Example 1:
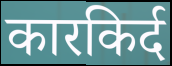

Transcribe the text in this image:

कारकिर्द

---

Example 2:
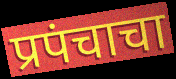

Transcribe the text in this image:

प्रपंचाचा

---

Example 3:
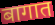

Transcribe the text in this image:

बागात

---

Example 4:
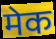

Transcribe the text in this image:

मेक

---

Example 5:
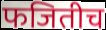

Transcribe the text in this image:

फजितीच